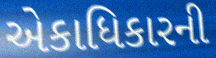
એકાધિકારની